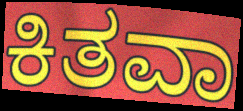
ಕಿತವಾ